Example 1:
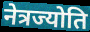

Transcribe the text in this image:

नेत्रज्योति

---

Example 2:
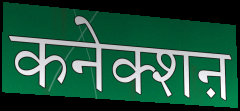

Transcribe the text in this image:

कनेक्शऩ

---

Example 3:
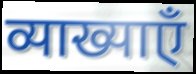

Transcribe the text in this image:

व्याख्याएँ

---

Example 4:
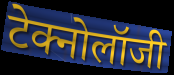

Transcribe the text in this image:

टेक्नोलॉजी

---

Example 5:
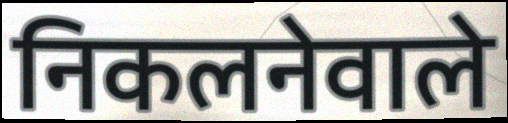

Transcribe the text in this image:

निकलनेवाले